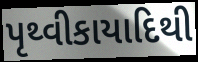
પૃથ્વીકાયાદિથી